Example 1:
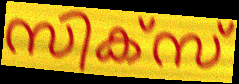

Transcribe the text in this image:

സിക്സ്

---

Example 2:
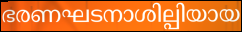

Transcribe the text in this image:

ഭരണഘടനാശില്പിയായ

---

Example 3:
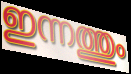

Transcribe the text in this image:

ഇന്നത്തും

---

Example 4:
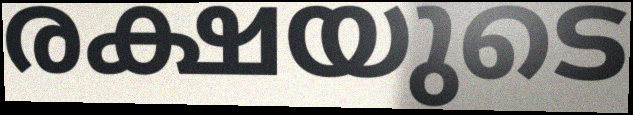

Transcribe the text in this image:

രക്ഷയുടെ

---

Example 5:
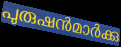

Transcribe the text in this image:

പുരുഷൻമാർക്കു